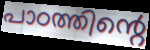
പാഠത്തിന്റെ